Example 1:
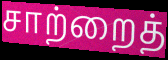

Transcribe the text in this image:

சாற்றைத்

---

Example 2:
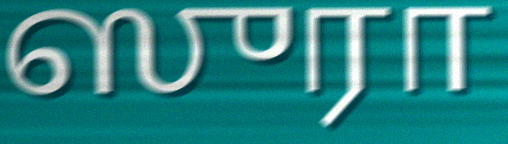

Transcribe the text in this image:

ஸுரா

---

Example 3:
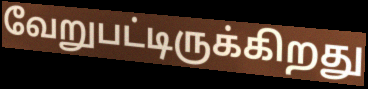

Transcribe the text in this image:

வேறுபட்டிருக்கிறது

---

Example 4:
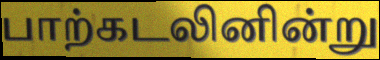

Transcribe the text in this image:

பாற்கடலினின்று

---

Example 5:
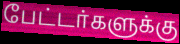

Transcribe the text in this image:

பேட்டர்களுக்கு